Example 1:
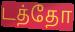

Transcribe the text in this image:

டத்தோ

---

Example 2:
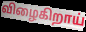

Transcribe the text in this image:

விழைகிறாய்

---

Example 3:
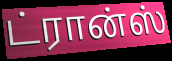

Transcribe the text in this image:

ட்ரான்ஸ்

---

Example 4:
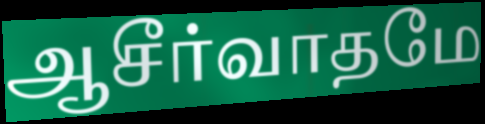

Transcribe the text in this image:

ஆசீர்வாதமே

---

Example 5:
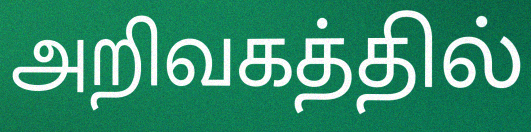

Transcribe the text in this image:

அறிவகத்தில்